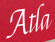
Atla